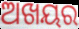
ଅଖୟର